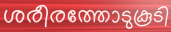
ശരീരത്തോടുകൂടി